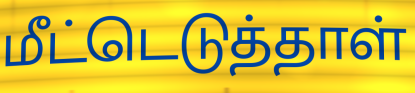
மீட்டெடுத்தாள்